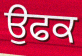
ਉਫਕ